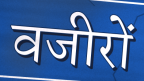
वजीरों